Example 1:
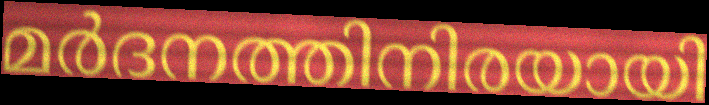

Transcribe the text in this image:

മർദനത്തിനിരയായി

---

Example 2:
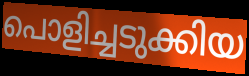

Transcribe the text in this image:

പൊളിച്ചടുക്കിയ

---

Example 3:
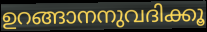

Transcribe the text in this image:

ഉറങ്ങാനനുവദിക്കൂ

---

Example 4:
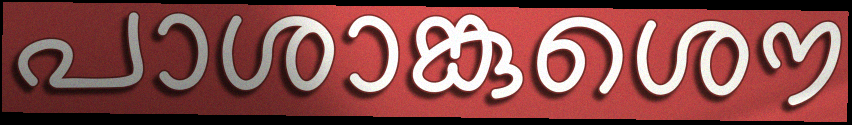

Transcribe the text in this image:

പാശാങ്കുശൌ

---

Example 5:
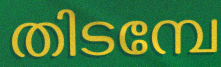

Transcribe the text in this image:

തിടമ്പേ